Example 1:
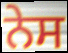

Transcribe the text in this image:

ਨੇਸ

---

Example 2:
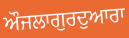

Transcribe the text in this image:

ਔਜਲਾਗੁਰਦੁਆਰਾ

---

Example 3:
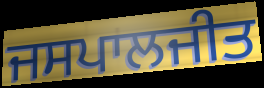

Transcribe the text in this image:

ਜਸਪਾਲਜੀਤ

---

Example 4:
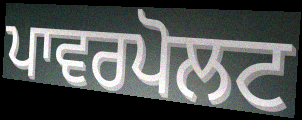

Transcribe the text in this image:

ਪਾਵਰਪੋਲਟ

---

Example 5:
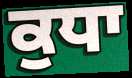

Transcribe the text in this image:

ਕੁਧਾ